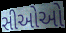
સીઓઓ